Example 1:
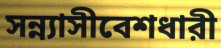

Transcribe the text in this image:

সন্ন্যাসীবেশধারী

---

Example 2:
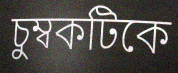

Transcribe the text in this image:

চুম্বকটিকে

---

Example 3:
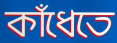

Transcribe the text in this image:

কাঁধেতে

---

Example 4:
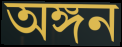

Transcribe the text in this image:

অঙ্গন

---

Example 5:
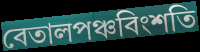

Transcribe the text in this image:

বেতালপঞ্চবিংশতি